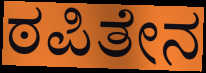
ಠಪಿತೇನ